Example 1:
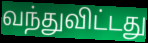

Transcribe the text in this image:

வந்துவிட்டது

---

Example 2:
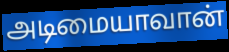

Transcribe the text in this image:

அடிமையாவான்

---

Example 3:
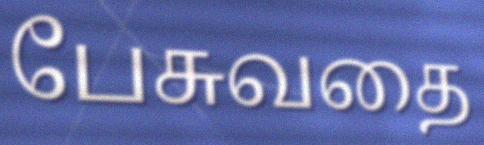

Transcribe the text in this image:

பேசுவதை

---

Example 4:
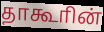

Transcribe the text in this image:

தாகூரின்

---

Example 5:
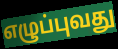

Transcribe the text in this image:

எழுப்புவது